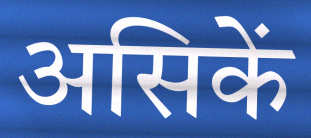
असिकें